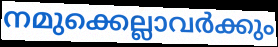
നമുക്കെല്ലാവർക്കും